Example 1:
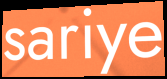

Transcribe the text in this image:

sariye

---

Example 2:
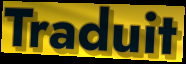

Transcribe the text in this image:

Traduit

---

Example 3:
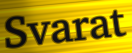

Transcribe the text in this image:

Svarat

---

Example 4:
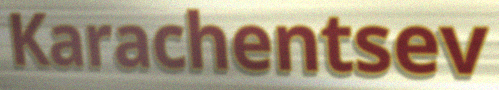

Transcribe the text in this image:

Karachentsev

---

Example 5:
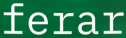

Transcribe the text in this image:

ferar